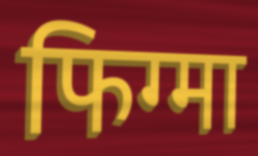
फिग्मा